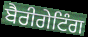
ਬੈਰੀਗੇਟਿੰਗ